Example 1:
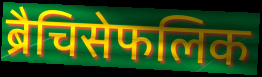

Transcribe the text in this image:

ब्रैचिसेफलिक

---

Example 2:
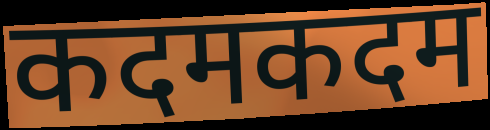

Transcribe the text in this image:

कदमकदम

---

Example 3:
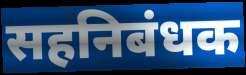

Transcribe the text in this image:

सहनिबंधक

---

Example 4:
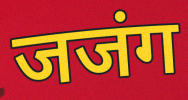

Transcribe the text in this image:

जजंग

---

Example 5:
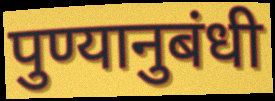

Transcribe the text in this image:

पुण्यानुबंधी